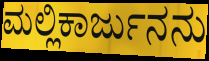
ಮಲ್ಲಿಕಾರ್ಜುನನು